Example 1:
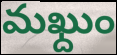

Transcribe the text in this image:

మఖ్దుం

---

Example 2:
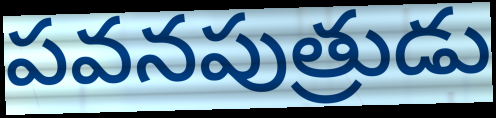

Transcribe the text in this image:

పవనపుత్రుడు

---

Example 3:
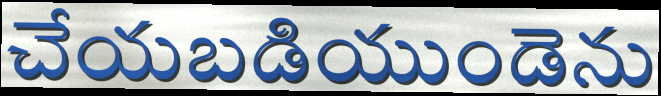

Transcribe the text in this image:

చేయబడియుండెను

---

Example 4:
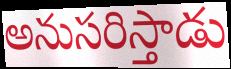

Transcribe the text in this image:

అనుసరిస్తాడు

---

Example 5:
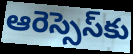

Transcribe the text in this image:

ఆరెస్సెస్‌కు